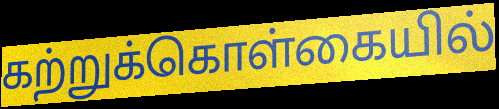
கற்றுக்கொள்கையில்